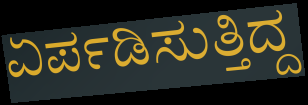
ಏರ್ಪಡಿಸುತ್ತಿದ್ದ